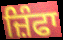
ਜ਼ਿੰਫਾ